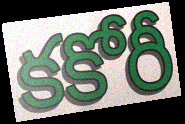
కకోరీ